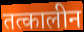
तत्कालीन